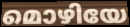
മൊഴിയേ